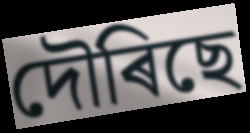
দৌৰিছে